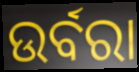
ଉର୍ବରା